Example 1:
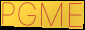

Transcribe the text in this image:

PGME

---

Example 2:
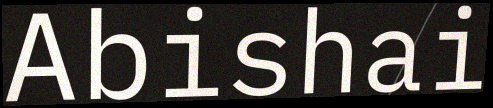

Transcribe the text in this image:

Abishai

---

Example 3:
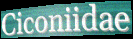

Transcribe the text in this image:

Ciconiidae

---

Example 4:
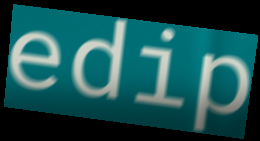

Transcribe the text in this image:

edip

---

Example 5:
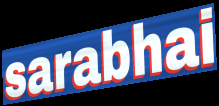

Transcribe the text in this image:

sarabhai